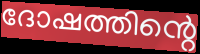
ദോഷത്തിന്റെ